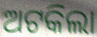
ଅଟକିଲା